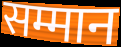
सम्‍मान